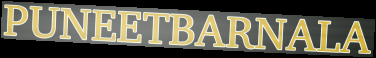
PUNEETBARNALA